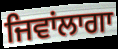
ਜਿਵਾਂਲਾਗਾ